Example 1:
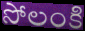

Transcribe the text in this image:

సోలంకి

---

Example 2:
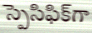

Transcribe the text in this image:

స్పెసిఫిక్‌గా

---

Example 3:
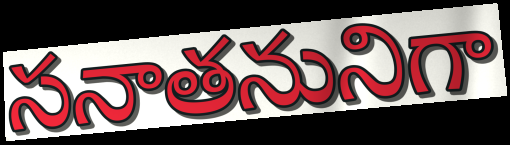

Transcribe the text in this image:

సనాతనునిగా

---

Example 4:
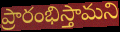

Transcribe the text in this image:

ప్రారంభిస్తామని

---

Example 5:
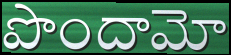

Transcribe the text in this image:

పొందామో